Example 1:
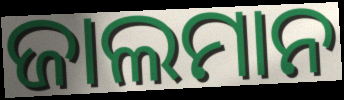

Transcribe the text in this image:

ଜାଲମାନ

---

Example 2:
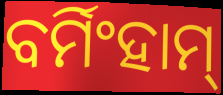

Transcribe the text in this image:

ବର୍ମିଂହାମ୍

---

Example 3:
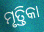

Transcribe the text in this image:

ମୃତ୍ତିକା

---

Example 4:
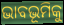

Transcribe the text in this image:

ଭାବଭୂମିକୁ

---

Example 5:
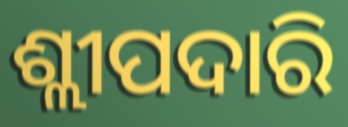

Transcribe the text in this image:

ଶ୍ଲୀପଦାରି